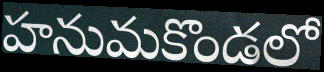
హనుమకొండలో